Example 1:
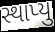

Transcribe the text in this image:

સ્થાપ્યુ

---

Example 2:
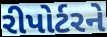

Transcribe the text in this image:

રીપોર્ટરને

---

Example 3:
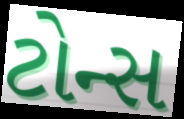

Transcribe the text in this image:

ટોન્સ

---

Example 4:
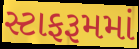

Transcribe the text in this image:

સ્ટાફરૂમમાં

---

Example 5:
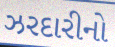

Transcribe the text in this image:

ઝરદારીનો